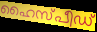
ഹൈസ്പീഡ്